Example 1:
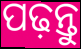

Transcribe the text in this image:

ପଢ଼ନ୍ତୁ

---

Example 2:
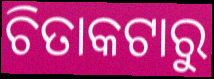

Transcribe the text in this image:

ଚିତାକଟାରୁ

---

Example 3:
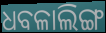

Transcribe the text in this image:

ଧବଳାଲିଙ୍ଗ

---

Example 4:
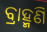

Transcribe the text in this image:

ବ୍ରାହ୍ମଣି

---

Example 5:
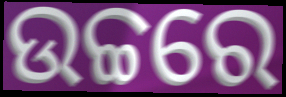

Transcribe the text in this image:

ଉଚ୍ଚରେ